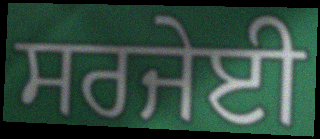
ਸਰਜੇਈ